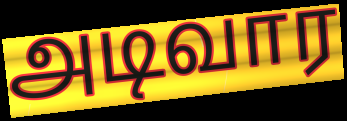
அடிவார